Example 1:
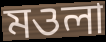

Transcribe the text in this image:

মওলা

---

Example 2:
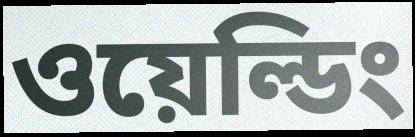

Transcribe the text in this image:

ওয়েল্ডিং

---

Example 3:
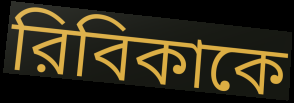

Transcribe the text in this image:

রিবিকাকে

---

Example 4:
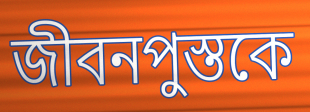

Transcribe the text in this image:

জীবনপুস্তকে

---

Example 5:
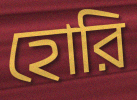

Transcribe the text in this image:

হোরি